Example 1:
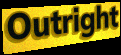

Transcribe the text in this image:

Outright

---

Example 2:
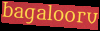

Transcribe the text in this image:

bagalooru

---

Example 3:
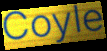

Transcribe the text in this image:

Coyle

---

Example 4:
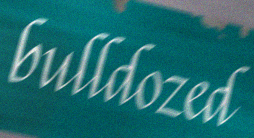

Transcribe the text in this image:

bulldozed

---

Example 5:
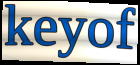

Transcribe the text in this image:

keyof